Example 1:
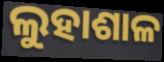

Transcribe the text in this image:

ଲୁହାଶାଳ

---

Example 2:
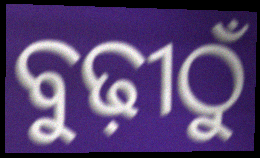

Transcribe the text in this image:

ବୁଢ଼ୀଠୁଁ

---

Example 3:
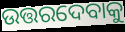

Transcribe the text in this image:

ଉତ୍ତରଦେବାକୁ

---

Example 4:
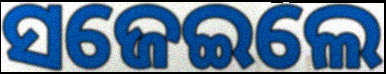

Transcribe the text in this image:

ସଜେଇଲେ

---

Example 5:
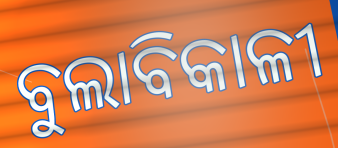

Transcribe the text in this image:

ବୁଲାବିକାଳୀ